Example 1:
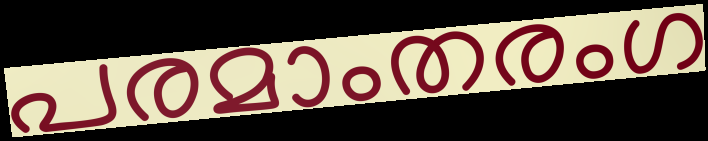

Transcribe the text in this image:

പരമാംതരംഗ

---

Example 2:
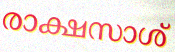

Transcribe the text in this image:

രാക്ഷസാശ്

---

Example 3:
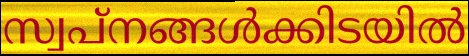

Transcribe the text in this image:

സ്വപ്നങ്ങൾക്കിടയിൽ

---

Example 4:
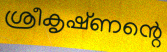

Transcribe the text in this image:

ശ്രീകൃഷ്‌ണന്റെ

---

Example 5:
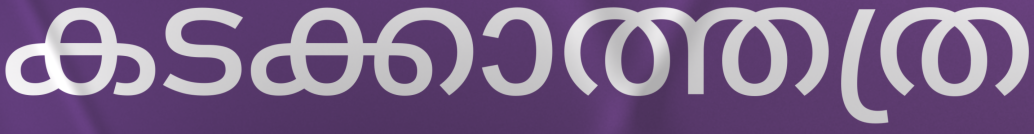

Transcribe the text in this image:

കടക്കാത്തത്ര